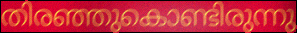
തിരഞ്ഞുകൊണ്ടിരുന്നു